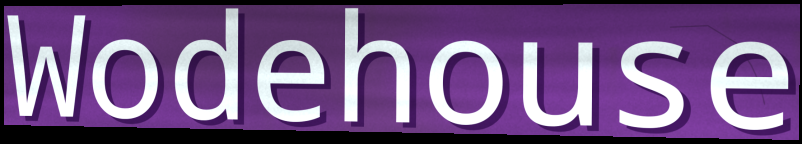
Wodehouse